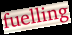
fuelling